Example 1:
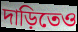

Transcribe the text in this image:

দাড়িতেও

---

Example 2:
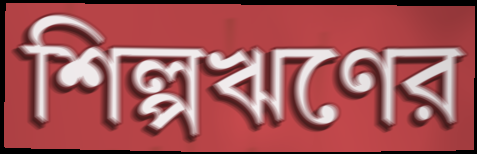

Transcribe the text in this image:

শিল্পঋণের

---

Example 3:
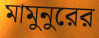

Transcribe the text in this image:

মামুনুরের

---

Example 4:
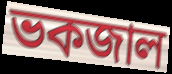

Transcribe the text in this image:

ভকজাল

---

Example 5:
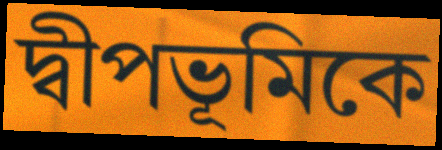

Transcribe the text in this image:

দ্বীপভূমিকে